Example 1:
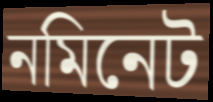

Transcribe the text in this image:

নমিনেট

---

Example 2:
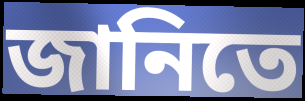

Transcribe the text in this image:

জানিতে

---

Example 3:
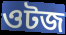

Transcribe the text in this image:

ওটজ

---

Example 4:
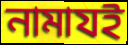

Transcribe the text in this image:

নামাযই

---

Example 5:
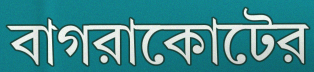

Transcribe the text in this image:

বাগরাকোটের